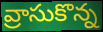
వ్రాసుకొన్న